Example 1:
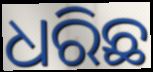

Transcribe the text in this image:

ଧରିଛ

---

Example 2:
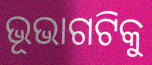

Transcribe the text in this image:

ଭୂଭାଗଟିକୁ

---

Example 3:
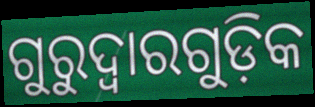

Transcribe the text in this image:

ଗୁରୁଦ୍ବାରଗୁଡ଼ିକ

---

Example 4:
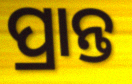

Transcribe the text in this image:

ପ୍ରାନ୍ତ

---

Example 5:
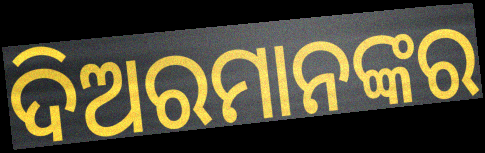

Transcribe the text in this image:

ଦିଅରମାନଙ୍କର